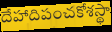
దేహాదిపంచకోశస్థా